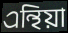
এন্থিয়া